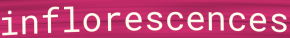
inflorescences